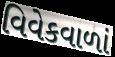
વિવેકવાળાં